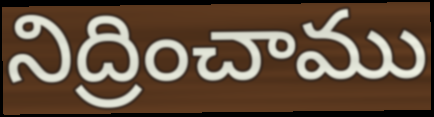
నిద్రించాము